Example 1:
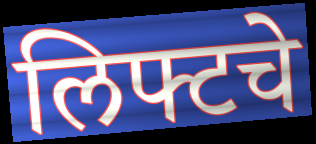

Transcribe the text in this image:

लिफ्टचे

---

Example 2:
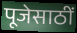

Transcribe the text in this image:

पूजेसाठीं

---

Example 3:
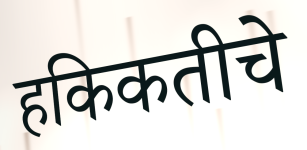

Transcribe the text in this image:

हकिकतीचे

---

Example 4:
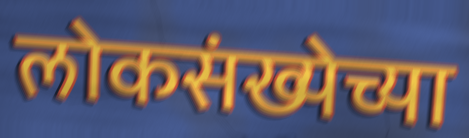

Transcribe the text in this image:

लोकसंख्‍येच्‍या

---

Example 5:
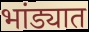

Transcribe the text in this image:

भांड्यात